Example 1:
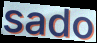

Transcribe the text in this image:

sado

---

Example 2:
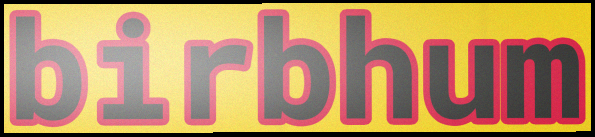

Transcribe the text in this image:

birbhum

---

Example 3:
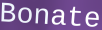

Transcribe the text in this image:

Bonate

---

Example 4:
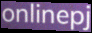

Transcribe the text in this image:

onlinepj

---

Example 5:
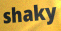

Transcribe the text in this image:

shaky